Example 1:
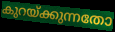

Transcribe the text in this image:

കുറയ്ക്കുന്നതോ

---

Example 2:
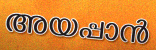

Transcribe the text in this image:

അയപ്പാൻ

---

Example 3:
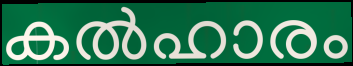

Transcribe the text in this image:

കൽഹാരം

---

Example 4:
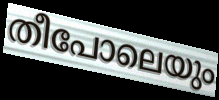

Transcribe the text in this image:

തീപോലെയും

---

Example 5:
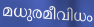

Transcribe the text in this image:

മധുരമീവിധം